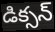
డిక్సన్